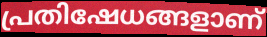
പ്രതിഷേധങ്ങളാണ്